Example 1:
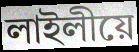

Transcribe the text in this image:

লাইলীয়ে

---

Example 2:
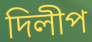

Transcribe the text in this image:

দিলীপ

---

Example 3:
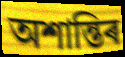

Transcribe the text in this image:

অশান্তিৰ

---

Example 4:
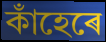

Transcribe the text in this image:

কাঁহেৰে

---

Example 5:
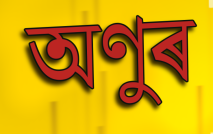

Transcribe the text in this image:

অণুৰ